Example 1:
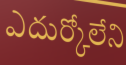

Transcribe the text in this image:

ఎదుర్కోలేని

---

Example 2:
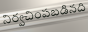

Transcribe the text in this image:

నిర్వచింపబడినది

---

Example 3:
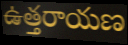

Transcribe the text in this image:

ఉత్తరాయణ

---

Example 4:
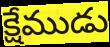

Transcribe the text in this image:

క్షేముడు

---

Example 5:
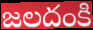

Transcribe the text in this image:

జలదంకి